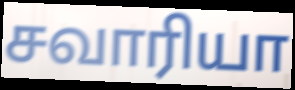
சவாரியா